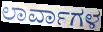
ಲಾರ್ವಾಗಳ